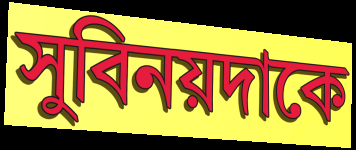
সুবিনয়দাকে